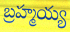
బ్రహ్మయ్య